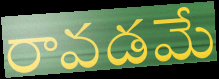
రావడమే